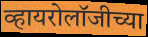
व्हायरोलॉजीच्या